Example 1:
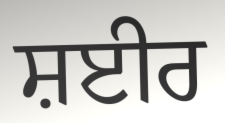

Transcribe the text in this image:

ਸ਼ਈਰ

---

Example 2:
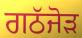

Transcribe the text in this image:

ਗਠੱਜੋੜ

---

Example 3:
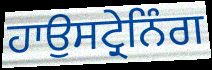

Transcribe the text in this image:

ਹਾਉਸਟ੍ਰੇਨਿੰਗ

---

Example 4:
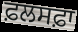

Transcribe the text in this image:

ਫ਼ਲਸਫ਼ਾ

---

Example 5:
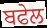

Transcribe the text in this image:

ਬਫੇਲ